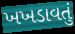
ખખડાવતું